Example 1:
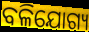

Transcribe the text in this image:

ବଳିଯୋଗ୍ୟ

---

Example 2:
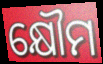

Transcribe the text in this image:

କ୍ଷୌମ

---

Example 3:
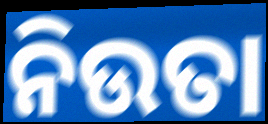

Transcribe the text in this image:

ନିଉତା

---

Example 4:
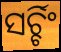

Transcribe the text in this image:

ସର୍ଚ୍ଚିଂ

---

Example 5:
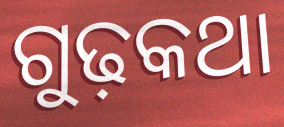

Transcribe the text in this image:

ଗୁଢ଼କଥା